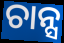
ଚାନ୍ସ